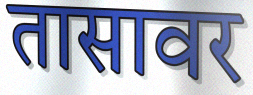
तासावर